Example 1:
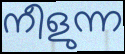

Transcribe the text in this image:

നീളുന്ന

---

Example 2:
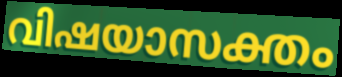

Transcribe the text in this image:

വിഷയാസക്തം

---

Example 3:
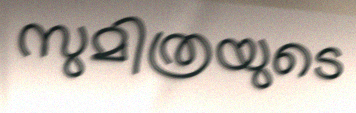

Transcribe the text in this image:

സുമിത്രയുടെ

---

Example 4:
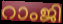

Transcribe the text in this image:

റാംജി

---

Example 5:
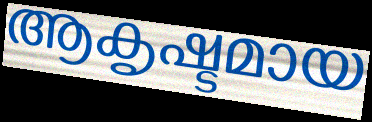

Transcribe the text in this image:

ആകൃഷ്ടമായ